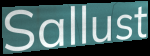
Sallust